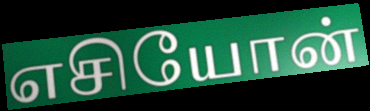
எசியோன்